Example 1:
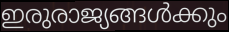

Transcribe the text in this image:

ഇരുരാജ്യങ്ങൾക്കും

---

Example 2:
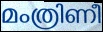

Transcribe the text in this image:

മംത്രിണീ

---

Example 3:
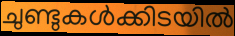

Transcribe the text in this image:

ചുണ്ടുകൾക്കിടയിൽ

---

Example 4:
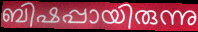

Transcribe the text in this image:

ബിഷപ്പായിരുന്നു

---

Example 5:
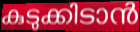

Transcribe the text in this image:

കുടുക്കിടാൻ